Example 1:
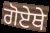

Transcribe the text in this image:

ਗੋਏਥੇ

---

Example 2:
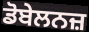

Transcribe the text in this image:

ਡੋਬੇਲਨਜ਼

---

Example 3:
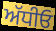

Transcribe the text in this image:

ਅੱਧੀਓ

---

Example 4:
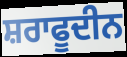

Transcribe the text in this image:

ਸ਼ਰਾਫੂਦੀਨ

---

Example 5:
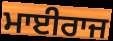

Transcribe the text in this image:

ਮਾਈਰਾਜ